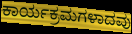
ಕಾರ್ಯಕ್ರಮಗಳಾದವು